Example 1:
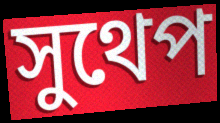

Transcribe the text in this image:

সুথেপ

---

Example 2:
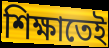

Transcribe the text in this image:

শিক্ষাতেই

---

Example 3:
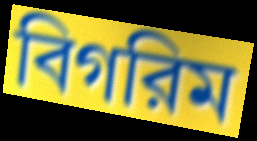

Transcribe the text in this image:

বিগরিম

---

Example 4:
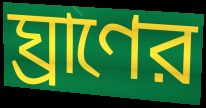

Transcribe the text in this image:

ঘ্রাণের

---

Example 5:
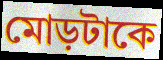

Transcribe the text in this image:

মোড়টাকে